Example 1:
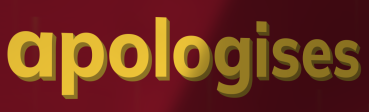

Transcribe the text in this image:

apologises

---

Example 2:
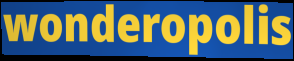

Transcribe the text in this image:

wonderopolis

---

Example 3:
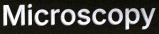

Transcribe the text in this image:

Microscopy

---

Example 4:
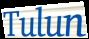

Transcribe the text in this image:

Tulun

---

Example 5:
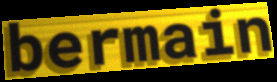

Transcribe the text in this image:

bermain